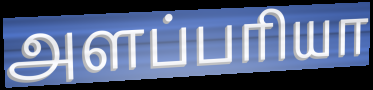
அளப்பரியா